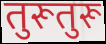
तुरूतुरू